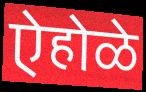
ऐहोळे